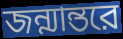
জন্মান্তরে